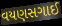
વયણસગાઈ